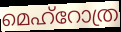
മെഹ്റോത്ര